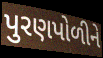
પુરણપોળીને